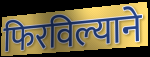
फिरविल्याने